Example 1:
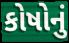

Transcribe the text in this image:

કોષોનું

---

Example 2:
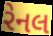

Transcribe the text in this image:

રેનલ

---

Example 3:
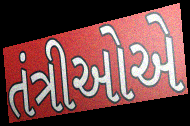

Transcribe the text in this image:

તંત્રીઓએ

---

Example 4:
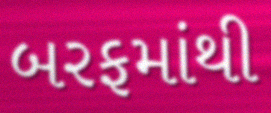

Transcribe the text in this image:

બરફમાંથી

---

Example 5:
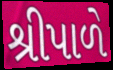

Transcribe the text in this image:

શ્રીપાળે